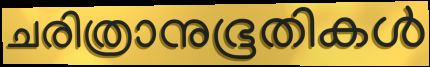
ചരിത്രാനുഭൂതികൾ